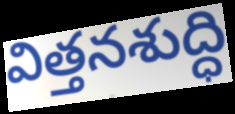
విత్తనశుద్ధి